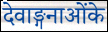
देवाङ्गनाओंके